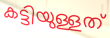
കട്ടിയുള്ളത്